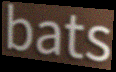
bats